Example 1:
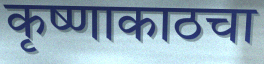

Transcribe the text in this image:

कृष्णाकाठचा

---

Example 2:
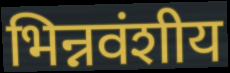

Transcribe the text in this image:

भिन्नवंशीय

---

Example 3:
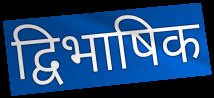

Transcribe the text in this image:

द्विभाषिक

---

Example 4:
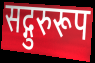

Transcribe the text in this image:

सद्गुरुरूप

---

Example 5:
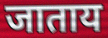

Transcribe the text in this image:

जाताय